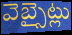
వెబ్సైట్లు